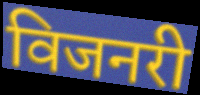
विजनरी